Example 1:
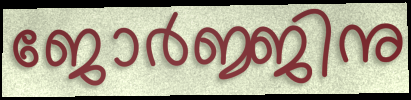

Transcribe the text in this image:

ജോർജ്ജിനു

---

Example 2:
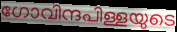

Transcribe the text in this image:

ഗോവിന്ദപിള്ളയുടെ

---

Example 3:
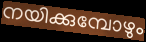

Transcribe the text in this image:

നയിക്കുമ്പോഴും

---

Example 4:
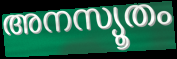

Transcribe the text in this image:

അനസ്യൂതം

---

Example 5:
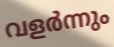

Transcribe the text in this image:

വളർന്നും